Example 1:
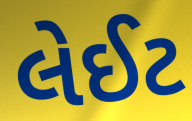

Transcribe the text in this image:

લેઈટ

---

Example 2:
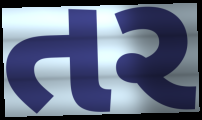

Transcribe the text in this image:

તર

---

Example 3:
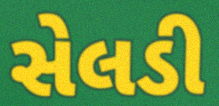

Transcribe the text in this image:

સેલડી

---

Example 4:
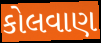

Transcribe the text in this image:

કોલવાણ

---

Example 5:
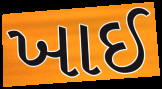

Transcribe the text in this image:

ખાઈ